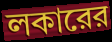
লকারের